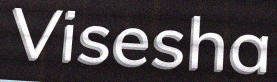
Visesha